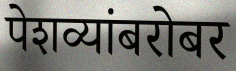
पेशव्यांबरोबर